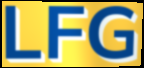
LFG